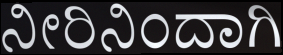
ನೀರಿನಿಂದಾಗಿ